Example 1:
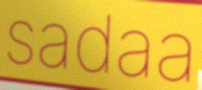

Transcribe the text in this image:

sadaa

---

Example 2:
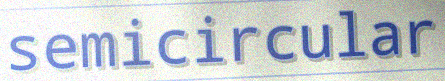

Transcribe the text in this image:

semicircular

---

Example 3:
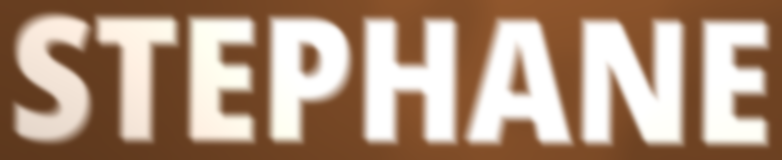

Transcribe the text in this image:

STEPHANE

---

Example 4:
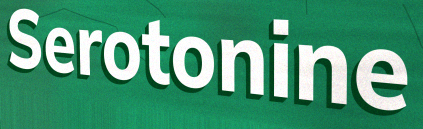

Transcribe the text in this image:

Serotonine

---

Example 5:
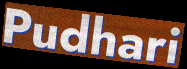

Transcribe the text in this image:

Pudhari